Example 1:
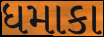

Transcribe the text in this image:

ધમાકા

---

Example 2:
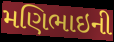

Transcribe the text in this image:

મણિભાઇની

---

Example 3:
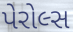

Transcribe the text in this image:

પેરોલ્સ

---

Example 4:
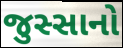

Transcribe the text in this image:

જુસ્સાનો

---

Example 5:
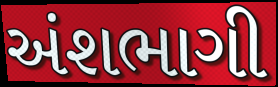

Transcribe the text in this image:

અંશભાગી